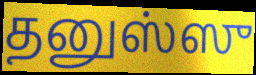
தனுஸ்ஸு